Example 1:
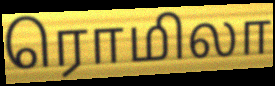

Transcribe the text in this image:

ரொமிலா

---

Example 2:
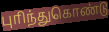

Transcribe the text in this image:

புரிந்துகொண்டு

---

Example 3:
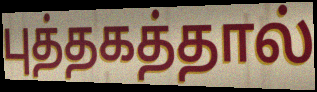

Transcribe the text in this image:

புத்தகத்தால்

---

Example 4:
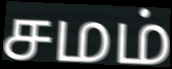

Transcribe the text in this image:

சமம்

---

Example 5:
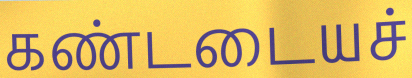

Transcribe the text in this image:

கண்டடையச்